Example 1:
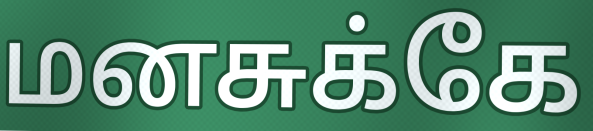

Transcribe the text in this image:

மனசுக்கே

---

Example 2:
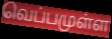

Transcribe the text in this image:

வெப்பமுள்ள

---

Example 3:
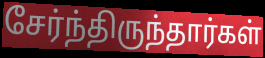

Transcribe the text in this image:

சேர்ந்திருந்தார்கள்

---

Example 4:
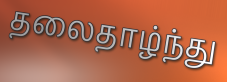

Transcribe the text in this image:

தலைதாழ்ந்து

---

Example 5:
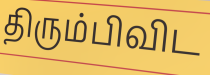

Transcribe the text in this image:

திரும்பிவிட